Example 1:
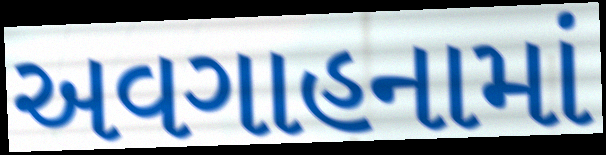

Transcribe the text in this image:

અવગાહનામાં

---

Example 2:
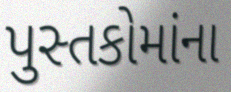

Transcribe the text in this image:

પુસ્તકોમાંના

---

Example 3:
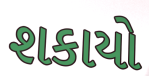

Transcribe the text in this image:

શકાયો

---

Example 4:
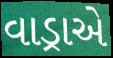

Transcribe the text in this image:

વાડ્રાએ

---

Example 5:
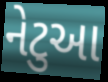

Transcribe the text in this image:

નેટુઆ